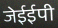
जेईईपी